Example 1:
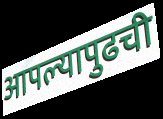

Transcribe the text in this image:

आपल्यापुढची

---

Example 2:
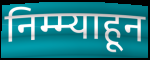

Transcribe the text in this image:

निम्म्याहून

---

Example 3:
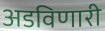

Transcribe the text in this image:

अडविणारी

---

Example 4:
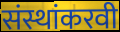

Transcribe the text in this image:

संस्थांकरवी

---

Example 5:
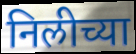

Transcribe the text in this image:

निलीच्या